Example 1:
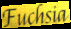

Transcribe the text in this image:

Fuchsia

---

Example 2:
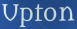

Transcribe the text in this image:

Upton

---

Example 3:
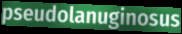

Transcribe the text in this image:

pseudolanuginosus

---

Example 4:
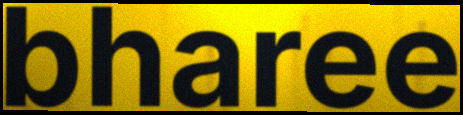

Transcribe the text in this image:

bharee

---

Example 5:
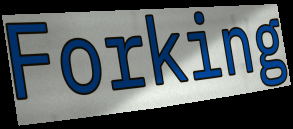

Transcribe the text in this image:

Forking